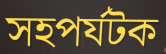
সহপর্যটক